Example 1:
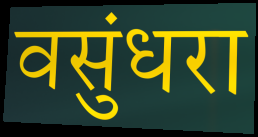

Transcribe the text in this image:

वसुंधरा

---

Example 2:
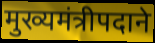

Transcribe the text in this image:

मुख्यमंत्रीपदाने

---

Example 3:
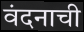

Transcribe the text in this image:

वंदनाची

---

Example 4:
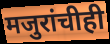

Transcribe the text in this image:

मजुरांचीही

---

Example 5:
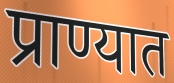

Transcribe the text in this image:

प्राण्यात